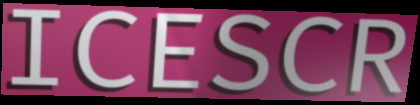
ICESCR